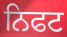
ਨਿਫਟ